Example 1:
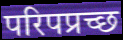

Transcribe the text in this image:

परिपप्रच्छ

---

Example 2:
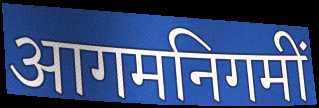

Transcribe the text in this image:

आगमनिगमीं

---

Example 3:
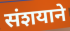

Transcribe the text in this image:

संशयाने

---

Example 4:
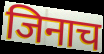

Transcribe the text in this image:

जिनाच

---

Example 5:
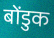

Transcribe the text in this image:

बोंडुक